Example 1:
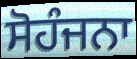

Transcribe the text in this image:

ਸੋਹੰਜਨਾ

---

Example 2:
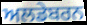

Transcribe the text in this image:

ਅਲਡੇਬਰਨ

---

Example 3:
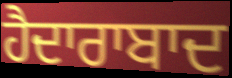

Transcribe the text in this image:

ਹੈਦਾਰਾਬਾਦ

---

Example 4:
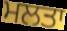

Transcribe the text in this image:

ਮਲਤਾ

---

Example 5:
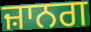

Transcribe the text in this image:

ਜ਼ਾਨਗ